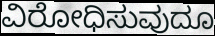
ವಿರೋಧಿಸುವುದೂ